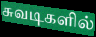
சுவடிகளில்